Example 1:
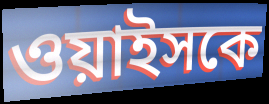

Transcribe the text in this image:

ওয়াইসকে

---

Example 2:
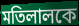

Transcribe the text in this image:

মতিলালকে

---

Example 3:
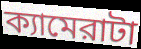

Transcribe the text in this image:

ক্যামেরাটা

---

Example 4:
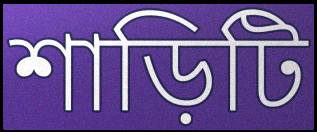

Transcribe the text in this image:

শাড়িটি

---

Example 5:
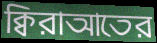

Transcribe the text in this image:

ক্বিরাআতের